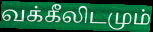
வக்கீலிடமும்